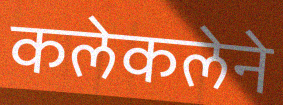
कलेकलेने